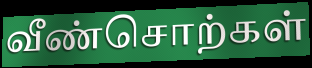
வீண்சொற்கள்